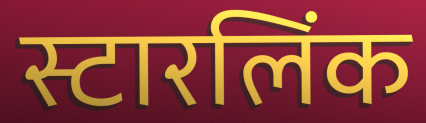
स्टारलिंक